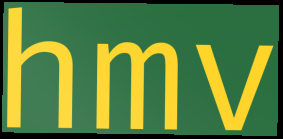
hmv